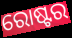
ରୋଷ୍ଟର